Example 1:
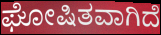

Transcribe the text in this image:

ಘೋಷಿತವಾಗಿದೆ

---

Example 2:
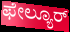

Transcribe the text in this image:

ಫೇಲ್ಯೂರ್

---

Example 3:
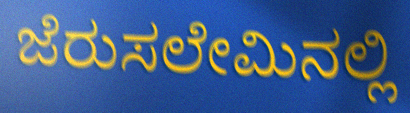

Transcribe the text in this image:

ಜೆರುಸಲೇಮಿನಲ್ಲಿ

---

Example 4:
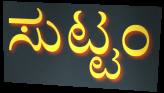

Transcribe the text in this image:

ಸುಟ್ಟಂ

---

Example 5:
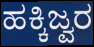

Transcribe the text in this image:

ಹಕ್ಕಿಜ್ವರ